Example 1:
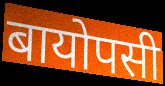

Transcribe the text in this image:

बायोपसी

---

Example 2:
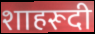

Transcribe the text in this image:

शाहरूदी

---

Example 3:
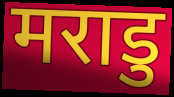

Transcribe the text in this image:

मराडु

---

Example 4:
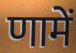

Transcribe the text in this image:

णामें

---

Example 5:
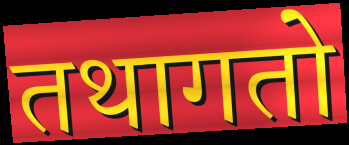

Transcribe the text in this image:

तथागतो